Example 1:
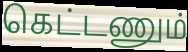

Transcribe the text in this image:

கெட்டணும்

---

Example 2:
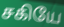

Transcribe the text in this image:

சகியே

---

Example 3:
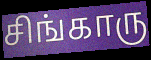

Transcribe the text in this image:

சிங்காரு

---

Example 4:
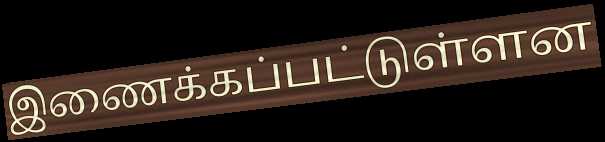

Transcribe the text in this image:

இணைக்கப்பட்டுள்ளன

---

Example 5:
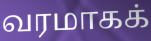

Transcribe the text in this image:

வரமாகக்